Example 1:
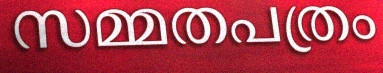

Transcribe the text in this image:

സമ്മതപത്രം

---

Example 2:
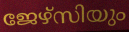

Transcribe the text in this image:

ജേഴ്സിയും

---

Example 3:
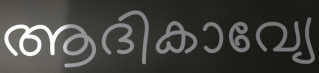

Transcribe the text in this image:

ആദികാവ്യേ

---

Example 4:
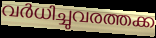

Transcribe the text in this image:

വർധിച്ചുവരത്തക്ക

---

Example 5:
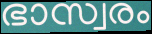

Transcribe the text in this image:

ഭാസ്വരം